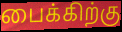
பைக்கிற்கு